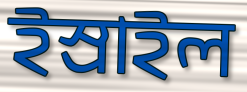
ইস্রাইল